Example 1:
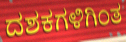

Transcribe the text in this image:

ದಶಕಗಳಿಗಿಂತ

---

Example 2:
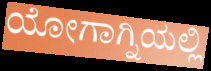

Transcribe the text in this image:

ಯೋಗಾಗ್ನಿಯಲ್ಲಿ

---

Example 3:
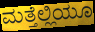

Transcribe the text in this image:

ಮತ್ತೆಲ್ಲಿಯೂ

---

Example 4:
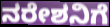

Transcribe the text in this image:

ನರೇಶನಿಗೆ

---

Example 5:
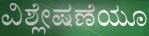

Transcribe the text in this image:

ವಿಶ್ಲೇಷಣೆಯೂ